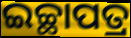
ଇଚ୍ଛାପତ୍ର